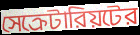
সেক্রেটারিয়টের